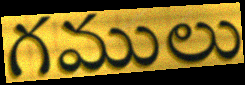
గములు